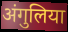
अंगुलिया